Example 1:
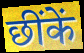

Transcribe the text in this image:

छींकें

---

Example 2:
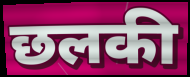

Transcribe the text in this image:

छलकी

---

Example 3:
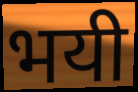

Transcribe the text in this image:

भयी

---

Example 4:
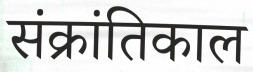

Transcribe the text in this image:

संक्रांतिकाल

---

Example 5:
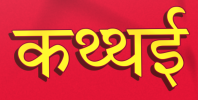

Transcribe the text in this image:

कथ्थई